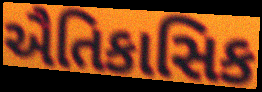
ઐતિકાસિક